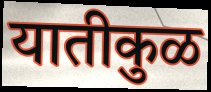
यातीकुळ